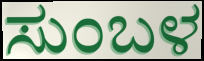
ಸುಂಬಳ